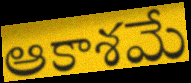
ఆకాశమే